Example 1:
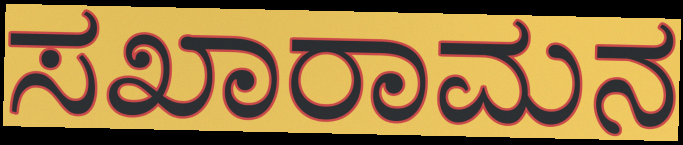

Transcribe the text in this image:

ಸಖಾರಾಮನ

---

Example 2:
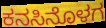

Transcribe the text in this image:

ಕನಸಿನೊಳಗ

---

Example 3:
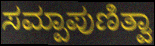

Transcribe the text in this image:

ಸಮ್ಪಾಪುಣಿತ್ವಾ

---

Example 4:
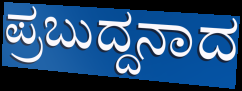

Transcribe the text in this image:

ಪ್ರಬುದ್ದನಾದ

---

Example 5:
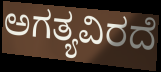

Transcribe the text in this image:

ಅಗತ್ಯವಿರದೆ